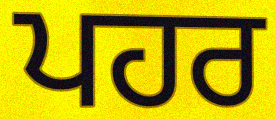
ਪਹਰ